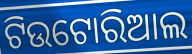
ଟିଉଟୋରିଆଲ